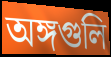
অঙ্গগুলি